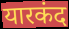
यारकंद